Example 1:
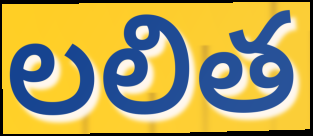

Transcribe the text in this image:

లలిత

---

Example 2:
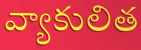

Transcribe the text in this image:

వ్యాకులిత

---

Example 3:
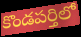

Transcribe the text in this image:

కొండపర్తిలో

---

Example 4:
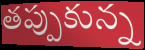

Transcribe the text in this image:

తప్పుకున్న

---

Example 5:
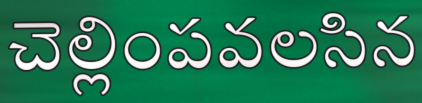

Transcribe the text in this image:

చెల్లింపవలసిన